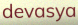
devasya